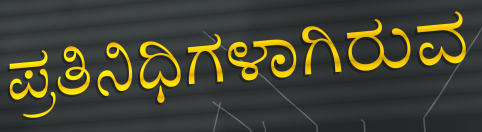
ಪ್ರತಿನಿಧಿಗಳಾಗಿರುವ